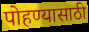
पोहण्यासाठी